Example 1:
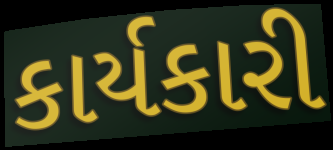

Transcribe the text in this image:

કાર્યકારી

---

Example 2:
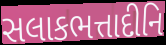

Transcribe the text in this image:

સલાકભત્તાદીનિ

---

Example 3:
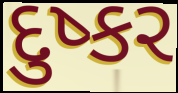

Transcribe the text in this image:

દુષ્કર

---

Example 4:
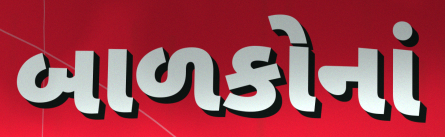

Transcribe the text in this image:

બાળકોનાં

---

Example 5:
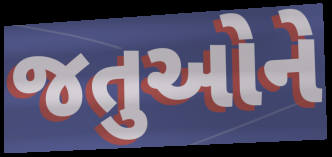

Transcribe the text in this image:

જતુઓને